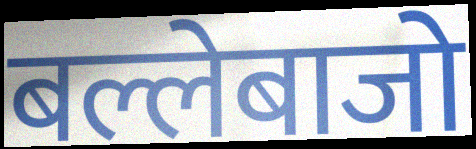
बल्लेबाजो